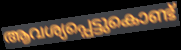
ആവശ്യപ്പെട്ടുകൊണ്ട്